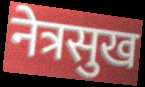
नेत्रसुख